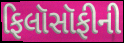
ફિલૉસૉફીની